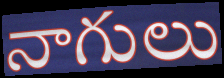
నాగులు